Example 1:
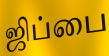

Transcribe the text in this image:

ஜிப்பை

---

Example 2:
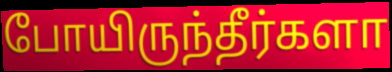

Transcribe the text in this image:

போயிருந்தீர்களா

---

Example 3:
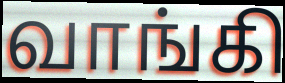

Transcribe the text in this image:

வாங்கி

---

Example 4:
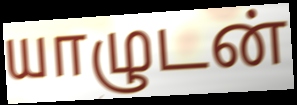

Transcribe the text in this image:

யாழுடன்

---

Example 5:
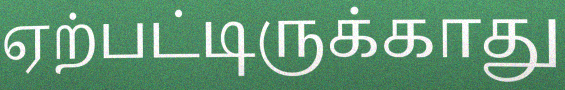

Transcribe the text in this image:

ஏற்பட்டிருக்காது